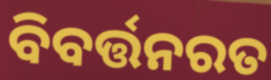
ବିବର୍ତ୍ତନରତ